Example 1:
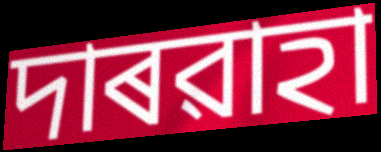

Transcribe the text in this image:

দাৰৱাহা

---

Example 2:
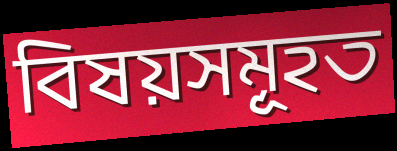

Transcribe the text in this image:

বিষয়সমূহত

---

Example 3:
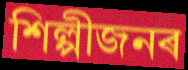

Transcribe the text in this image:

শিল্পীজনৰ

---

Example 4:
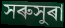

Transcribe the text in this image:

সৰুসুৰা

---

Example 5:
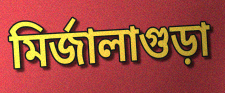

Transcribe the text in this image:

মিৰ্জালাগুড়া